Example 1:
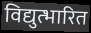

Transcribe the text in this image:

विद्युत्भारित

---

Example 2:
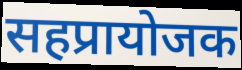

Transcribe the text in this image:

सहप्रायोजक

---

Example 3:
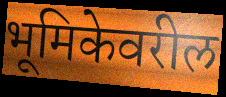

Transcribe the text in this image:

भूमिकेवरील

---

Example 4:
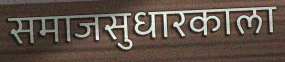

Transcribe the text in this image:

समाजसुधारकाला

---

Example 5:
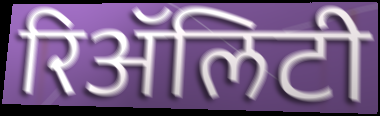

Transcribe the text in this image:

रिॲलिटी